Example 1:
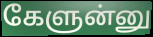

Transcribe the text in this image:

கேளுன்னு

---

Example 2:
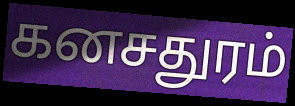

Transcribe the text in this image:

கனசதுரம்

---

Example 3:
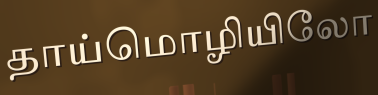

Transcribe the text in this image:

தாய்மொழியிலோ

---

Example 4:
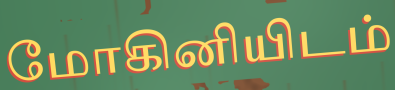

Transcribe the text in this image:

மோகினியிடம்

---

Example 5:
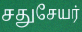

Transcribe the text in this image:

சதுசேயர்